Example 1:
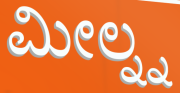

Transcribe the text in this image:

ಮೀಲ್ನ್ನ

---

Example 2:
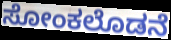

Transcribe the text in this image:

ಸೋಂಕಲೊಡನೆ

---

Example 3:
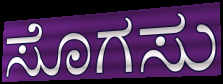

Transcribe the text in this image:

ಸೊಗಸು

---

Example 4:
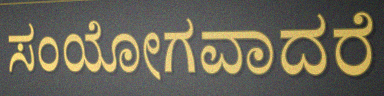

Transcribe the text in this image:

ಸಂಯೋಗವಾದರೆ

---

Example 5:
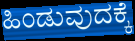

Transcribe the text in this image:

ಹಿಂಡುವುದಕ್ಕೆ